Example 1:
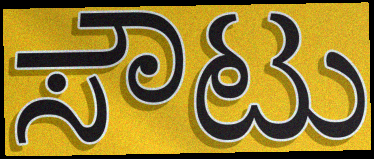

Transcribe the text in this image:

ಸೌಟು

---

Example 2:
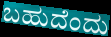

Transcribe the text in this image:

ಬಹುದೆಂದು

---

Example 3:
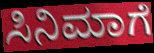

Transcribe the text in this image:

ಸಿನಿಮಾಗೆ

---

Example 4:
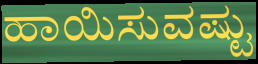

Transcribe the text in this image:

ಹಾಯಿಸುವಷ್ಟು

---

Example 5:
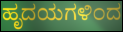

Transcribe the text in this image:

ಹೃದಯಗಳಿಂದ